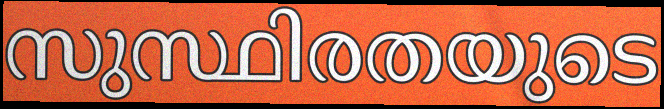
സുസ്ഥിരതയുടെ